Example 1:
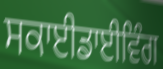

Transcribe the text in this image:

ਸਕਾਈਡਾਈਵਿੰਗ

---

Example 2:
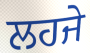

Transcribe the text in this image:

ਲਹਜੇ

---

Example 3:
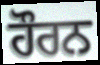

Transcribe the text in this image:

ਹੌਰਨ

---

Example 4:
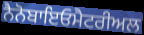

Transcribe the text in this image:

ਨੈਨੋਬਾਇਓਮੈਟਰੀਅਲ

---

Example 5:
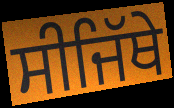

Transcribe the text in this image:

ਸੀਜਿੱਥੇ